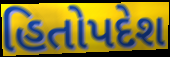
હિતોપદેશ